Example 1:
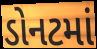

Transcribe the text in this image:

ડોનટમાં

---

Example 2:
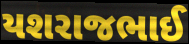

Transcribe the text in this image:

યશરાજભાઈ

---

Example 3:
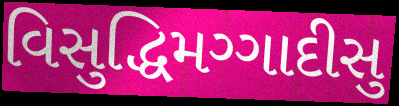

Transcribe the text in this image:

વિસુદ્ધિમગ્ગાદીસુ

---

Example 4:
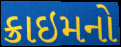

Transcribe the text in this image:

ક્રાઇમનો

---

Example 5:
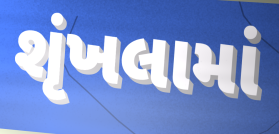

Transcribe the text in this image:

શૃંખલામાં